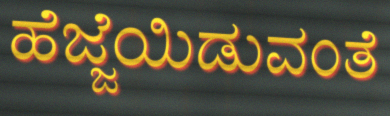
ಹೆಜ್ಜೆಯಿಡುವಂತೆ